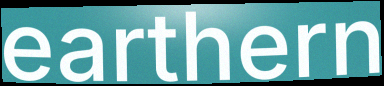
earthern